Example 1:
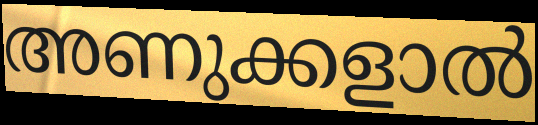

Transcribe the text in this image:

അണുക്കളാൽ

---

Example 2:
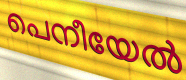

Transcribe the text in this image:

പെനീയേൽ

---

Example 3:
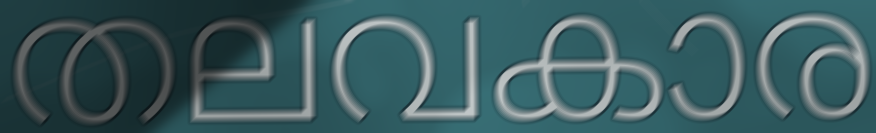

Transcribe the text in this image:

തലവകാര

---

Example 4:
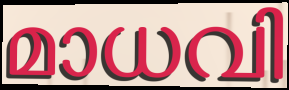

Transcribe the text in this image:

മാധവി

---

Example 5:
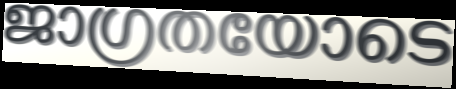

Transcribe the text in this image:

ജാഗ്രതയോടെ